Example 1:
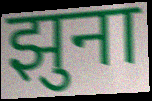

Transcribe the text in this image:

झुना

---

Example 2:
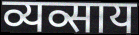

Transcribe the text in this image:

व्यव्साय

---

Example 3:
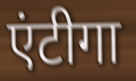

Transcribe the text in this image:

एंटीगा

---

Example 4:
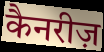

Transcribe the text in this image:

कैनरीज़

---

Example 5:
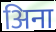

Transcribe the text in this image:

अिना